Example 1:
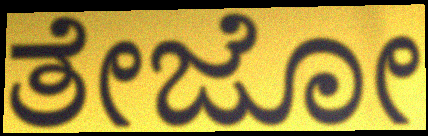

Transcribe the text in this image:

ತೇಜೋ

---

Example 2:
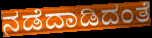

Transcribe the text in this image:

ನಡೆದಾಡಿದಂತೆ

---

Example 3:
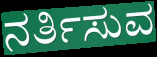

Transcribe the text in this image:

ನರ್ತಿಸುವ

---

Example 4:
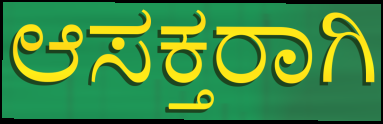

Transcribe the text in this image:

ಆಸಕ್ತರಾಗಿ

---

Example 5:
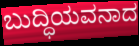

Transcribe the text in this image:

ಬುದ್ಧಿಯವನಾದ